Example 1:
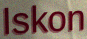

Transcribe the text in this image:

Iskon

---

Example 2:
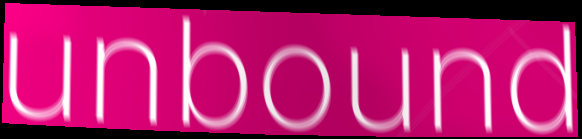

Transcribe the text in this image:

unbound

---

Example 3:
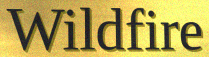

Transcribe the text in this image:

Wildfire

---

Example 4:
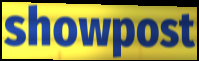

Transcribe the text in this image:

showpost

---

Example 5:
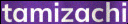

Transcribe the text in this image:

tamizachi